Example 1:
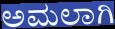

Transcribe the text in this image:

ಅಮಲಾಗಿ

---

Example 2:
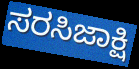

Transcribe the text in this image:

ಸರಸಿಜಾಕ್ಷಿ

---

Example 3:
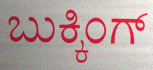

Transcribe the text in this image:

ಬುಕ್ಕಿಂಗ್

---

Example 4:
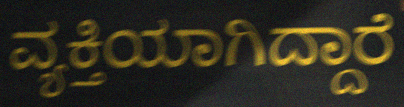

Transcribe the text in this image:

ವ್ಯಕ್ತಿಯಾಗಿದ್ದಾರೆ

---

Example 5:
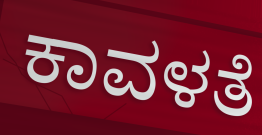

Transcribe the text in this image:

ಕಾವಳತೆ